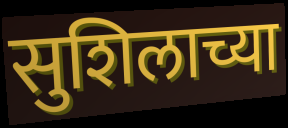
सुशिलाच्या